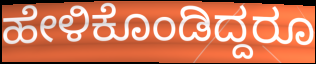
ಹೇಳಿಕೊಂಡಿದ್ದರೂ